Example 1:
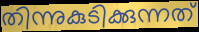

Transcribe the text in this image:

തിന്നുകുടിക്കുന്നത്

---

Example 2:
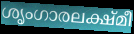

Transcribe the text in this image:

ശൃംഗാരലക്ഷ്മീ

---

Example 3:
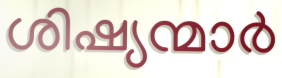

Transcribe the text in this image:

ശിഷ്യന്മാർ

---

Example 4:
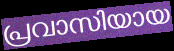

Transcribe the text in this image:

പ്രവാസിയായ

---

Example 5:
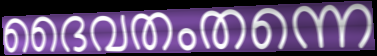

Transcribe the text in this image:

ദൈവതംതന്നെ